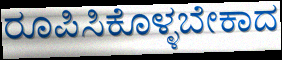
ರೂಪಿಸಿಕೊಳ್ಳಬೇಕಾದ